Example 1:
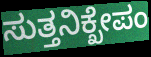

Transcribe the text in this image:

ಸುತ್ತನಿಕ್ಖೇಪಂ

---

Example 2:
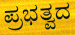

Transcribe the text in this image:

ಪ್ರಭತ್ವದ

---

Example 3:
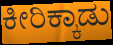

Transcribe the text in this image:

ಕೀರಿಕ್ಕಾಡು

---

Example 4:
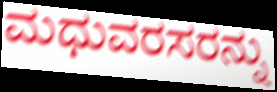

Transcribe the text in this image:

ಮಧುವರಸರನ್ನು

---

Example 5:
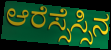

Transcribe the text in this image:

ಆರೆಸ್ಸೆಸ್ಸಿನ